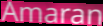
Amaran